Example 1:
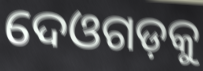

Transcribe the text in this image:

ଦେଓଗଡ଼କୁ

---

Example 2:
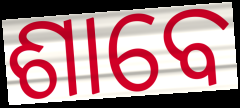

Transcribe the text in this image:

ଶାବେ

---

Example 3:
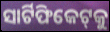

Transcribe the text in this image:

ସାର୍ଟିଫିକେଟ୍‌କୁ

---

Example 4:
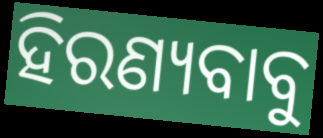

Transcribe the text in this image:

ହିରଣ୍ୟବାବୁ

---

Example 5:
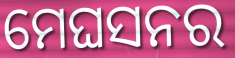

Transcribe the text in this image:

ମେଘସନର